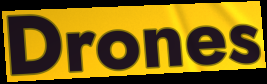
Drones